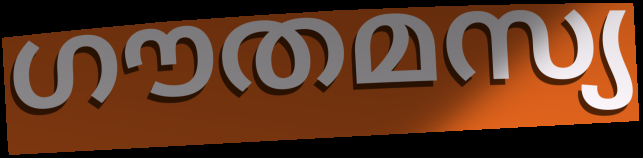
ഗൗതമസ്യ